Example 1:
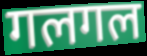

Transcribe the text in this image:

गलगल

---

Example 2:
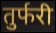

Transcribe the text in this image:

तुर्फरी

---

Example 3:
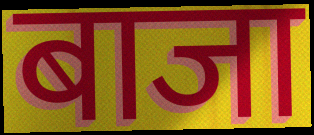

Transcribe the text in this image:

बाजा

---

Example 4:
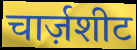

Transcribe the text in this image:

चार्ज़शीट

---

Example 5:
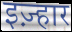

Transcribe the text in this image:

इज़्हार